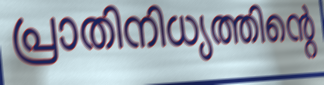
പ്രാതിനിധ്യത്തിന്റെ